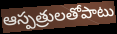
ఆస్పత్రులతోపాటు